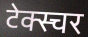
टेक्स्चर